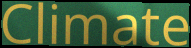
Climate